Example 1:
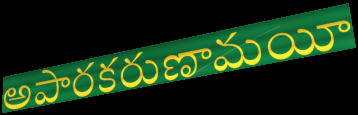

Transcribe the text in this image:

అపారకరుణామయీ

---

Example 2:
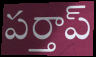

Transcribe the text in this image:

పర్తాప్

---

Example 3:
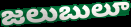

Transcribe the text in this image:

జలుబులూ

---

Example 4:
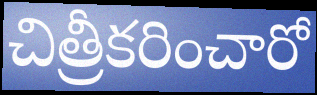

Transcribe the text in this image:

చిత్రీకరించారో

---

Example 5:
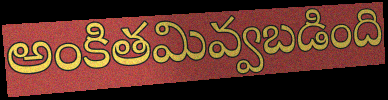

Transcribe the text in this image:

అంకితమివ్వబడింది